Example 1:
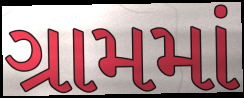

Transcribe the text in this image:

ગ્રામમાં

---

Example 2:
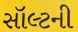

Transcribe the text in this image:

સૉલ્ટની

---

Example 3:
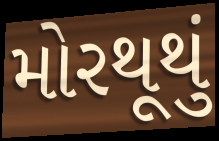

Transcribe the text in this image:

મોરથૂથું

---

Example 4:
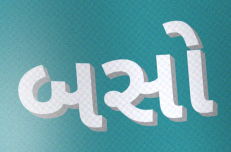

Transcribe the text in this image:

બસો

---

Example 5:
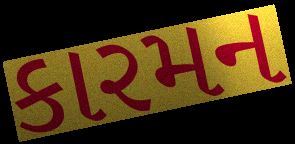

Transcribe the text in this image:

કારમન